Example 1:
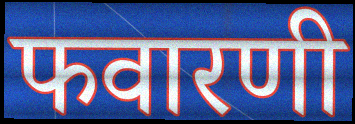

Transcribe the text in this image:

फवारणी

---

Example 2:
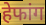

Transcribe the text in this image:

हेफांग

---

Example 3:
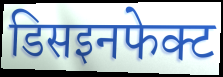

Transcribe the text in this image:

डिसइनफेक्ट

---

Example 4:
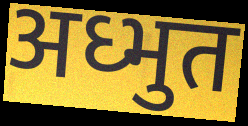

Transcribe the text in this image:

अध्भुत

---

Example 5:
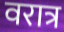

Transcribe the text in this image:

वरात्र